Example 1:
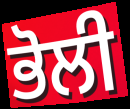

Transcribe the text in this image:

ਭੋਲੀ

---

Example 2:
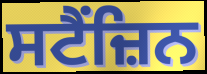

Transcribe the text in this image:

ਸਟੈਂਜ਼ਿਨ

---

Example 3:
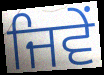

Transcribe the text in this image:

ਜਿਵੇਂ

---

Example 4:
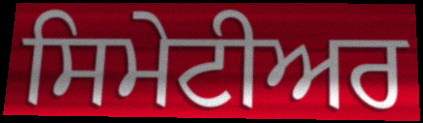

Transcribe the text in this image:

ਸਿਮੇਟੀਅਰ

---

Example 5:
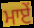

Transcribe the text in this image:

ਮਾਏਂ